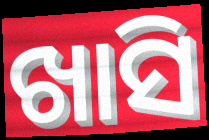
ଖାସି